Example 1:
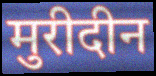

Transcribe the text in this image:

मुरीदीन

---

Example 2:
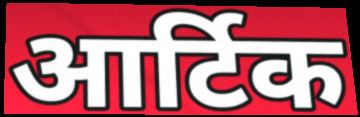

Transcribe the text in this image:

आर्टिक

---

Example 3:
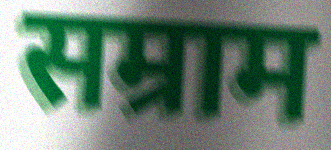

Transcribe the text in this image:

सम्राम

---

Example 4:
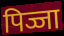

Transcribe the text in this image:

पिज्जा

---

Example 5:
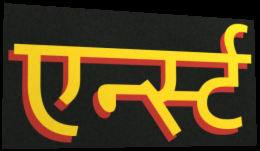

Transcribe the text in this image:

एर्न्स्ट